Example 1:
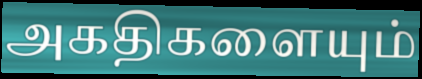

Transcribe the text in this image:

அகதிகளையும்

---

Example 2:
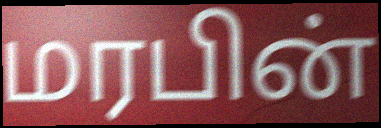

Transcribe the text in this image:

மரபின்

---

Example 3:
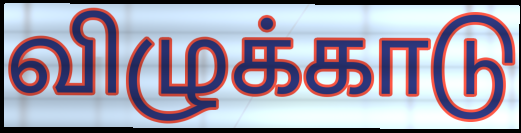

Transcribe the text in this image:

விழுக்காடு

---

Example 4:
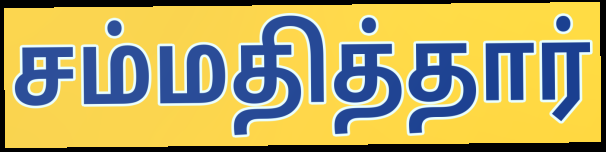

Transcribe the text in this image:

சம்மதித்தார்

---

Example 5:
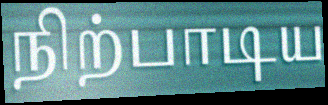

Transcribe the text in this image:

நிற்பாடிய